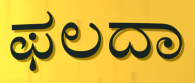
ಫಲದಾ